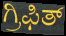
ಗ್ರಿಫಿತ್